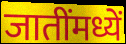
जातींमध्यें